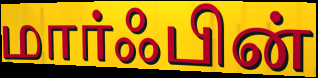
மார்ஃபின்